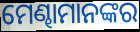
ମେଣ୍ଢାମାନଙ୍କର